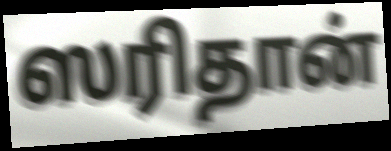
ஸரிதான்